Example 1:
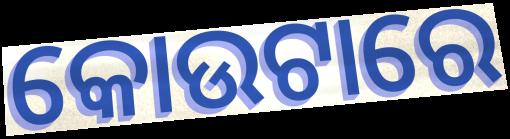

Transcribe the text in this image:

କୋଉଟାରେ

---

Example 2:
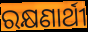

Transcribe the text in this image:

ରକ୍ଷଣାର୍ଥୀ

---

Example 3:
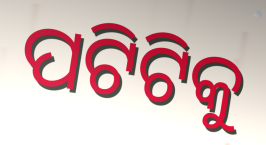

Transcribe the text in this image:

ପଟିଟିକୁ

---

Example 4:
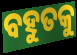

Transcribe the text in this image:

ବହୁତକୁ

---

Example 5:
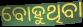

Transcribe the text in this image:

ବୋହୁଥିବା